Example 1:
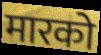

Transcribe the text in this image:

मारको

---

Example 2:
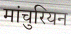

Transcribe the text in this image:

मांचुरियन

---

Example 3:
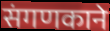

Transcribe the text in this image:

संगणकाने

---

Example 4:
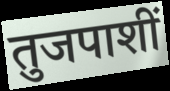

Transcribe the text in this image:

तुजपाशीं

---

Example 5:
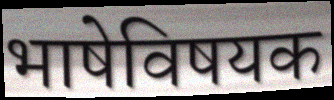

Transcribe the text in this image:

भाषेविषयक